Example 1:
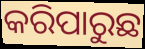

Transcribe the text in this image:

କରିପାରୁଛ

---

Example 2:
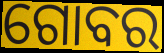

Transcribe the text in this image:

ଗୋବର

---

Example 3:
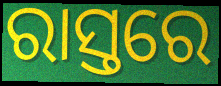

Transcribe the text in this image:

ରାସ୍ତରେ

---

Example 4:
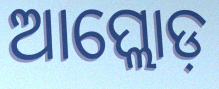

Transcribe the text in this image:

ଆପ୍ଲୋଡ଼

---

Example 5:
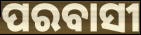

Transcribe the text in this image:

ପରବାସୀ